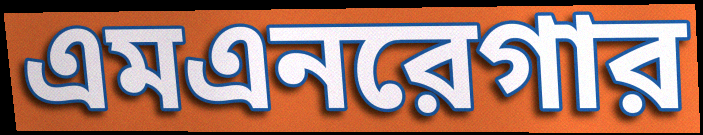
এমএনরেগার